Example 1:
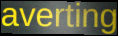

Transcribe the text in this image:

averting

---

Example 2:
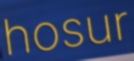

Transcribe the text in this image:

hosur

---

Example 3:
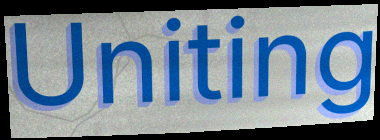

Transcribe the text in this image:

Uniting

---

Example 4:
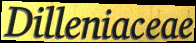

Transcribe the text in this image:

Dilleniaceae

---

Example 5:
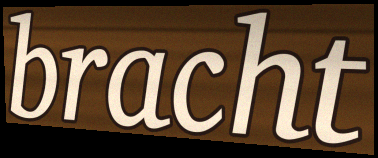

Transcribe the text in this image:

bracht